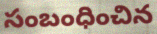
సంబంధించిన